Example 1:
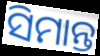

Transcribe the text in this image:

ସିମାନ୍ତ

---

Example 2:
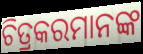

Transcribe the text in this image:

ଚିତ୍ରକରମାନଙ୍କ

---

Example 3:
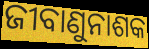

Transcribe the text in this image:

ଜୀବାଣୁନାଶକ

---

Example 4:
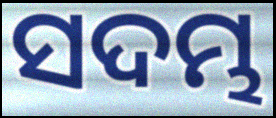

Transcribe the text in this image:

ସଦମ୍ଭ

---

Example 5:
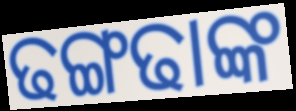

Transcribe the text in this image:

ଢଙ୍ଗଢାଙ୍କ